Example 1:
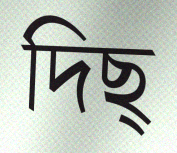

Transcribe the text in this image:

দিছ্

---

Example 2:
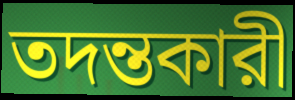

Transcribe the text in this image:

তদন্তকারী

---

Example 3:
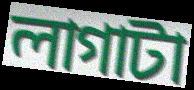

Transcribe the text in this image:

লাগাটা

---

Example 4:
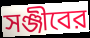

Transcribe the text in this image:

সঞ্জীবের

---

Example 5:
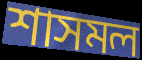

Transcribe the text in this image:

শাসমল